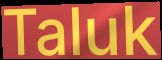
Taluk